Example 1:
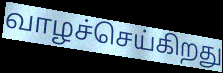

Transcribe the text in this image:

வாழச்செய்கிறது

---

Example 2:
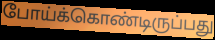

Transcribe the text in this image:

போய்க்கொண்டிருப்பது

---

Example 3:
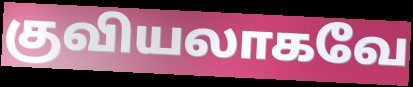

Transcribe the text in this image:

குவியலாகவே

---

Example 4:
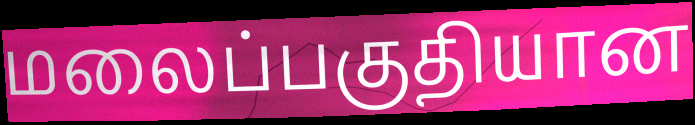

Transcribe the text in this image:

மலைப்பகுதியான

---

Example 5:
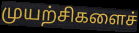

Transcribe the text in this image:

முயற்சிகளைச்